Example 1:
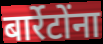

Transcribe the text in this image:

बार्रेटोंना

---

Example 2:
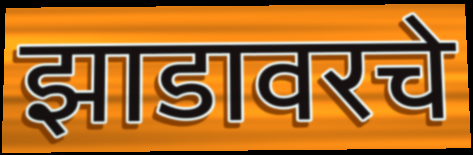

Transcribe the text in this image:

झाडावरचे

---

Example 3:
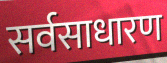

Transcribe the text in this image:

सर्वसाधारण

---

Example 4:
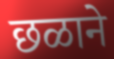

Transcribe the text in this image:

छळाने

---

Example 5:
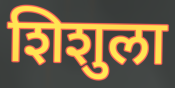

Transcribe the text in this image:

शिशुला